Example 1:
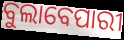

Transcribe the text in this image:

ବୁଲାବେପାରୀ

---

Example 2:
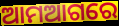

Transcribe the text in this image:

ଆମଆଗରେ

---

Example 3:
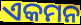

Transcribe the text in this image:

ଏକମନ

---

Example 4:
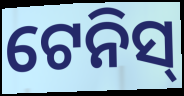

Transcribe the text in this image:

ଟେନିସ୍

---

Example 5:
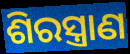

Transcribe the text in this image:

ଶିରସ୍ତ୍ରାଣ